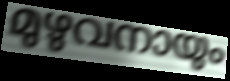
മുഴുവനായും